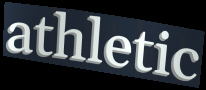
athletic